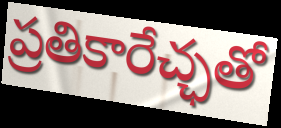
ప్రతికారేచ్ఛతో